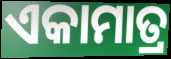
ଏକାମାତ୍ର